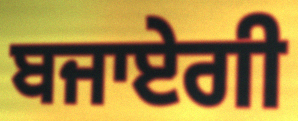
ਬਜਾਏਗੀ